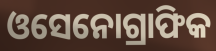
ଓସେନୋଗ୍ରାଫିକ